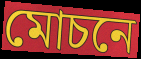
মোচনে